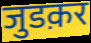
जुडक़र